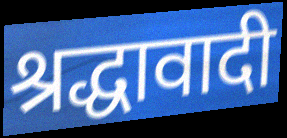
श्रद्धावादी